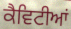
ਕੈਵਿਟੀਆਂ